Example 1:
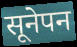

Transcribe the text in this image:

सूनेपन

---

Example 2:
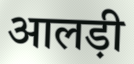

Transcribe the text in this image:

आलड़ी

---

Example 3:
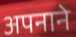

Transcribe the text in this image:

अपनाने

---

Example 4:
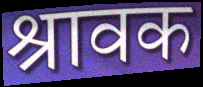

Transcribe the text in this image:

श्रावक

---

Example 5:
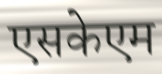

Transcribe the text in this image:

एसकेएम